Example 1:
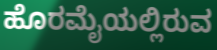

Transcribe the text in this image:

ಹೊರಮೈಯಲ್ಲಿರುವ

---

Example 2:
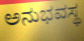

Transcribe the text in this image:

ಅನುಭವಸ್ಥ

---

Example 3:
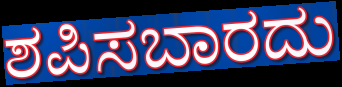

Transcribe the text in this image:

ಶಪಿಸಬಾರದು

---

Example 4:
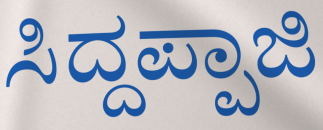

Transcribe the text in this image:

ಸಿದ್ದಪ್ಪಾಜಿ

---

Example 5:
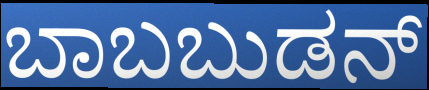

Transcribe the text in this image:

ಬಾಬಬುಡನ್